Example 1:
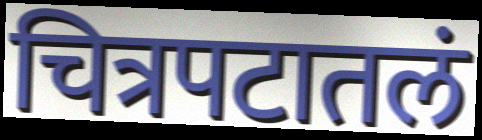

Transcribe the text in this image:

चित्रपटातलं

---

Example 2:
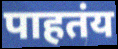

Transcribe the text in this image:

पाहतंय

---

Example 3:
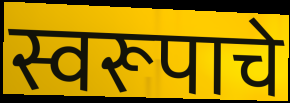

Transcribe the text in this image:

स्वरूपाचे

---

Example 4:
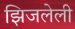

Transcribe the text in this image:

झिजलेली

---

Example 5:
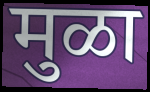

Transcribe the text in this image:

मुळा